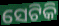
ସେଟିକି